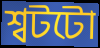
শ্বটটো